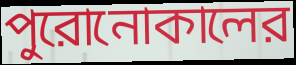
পুরোনোকালের